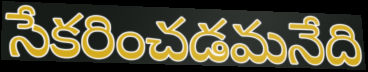
సేకరించడమనేది